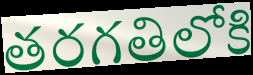
తరగతిలోకి